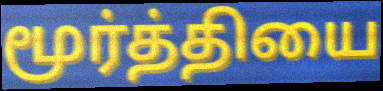
மூர்த்தியை